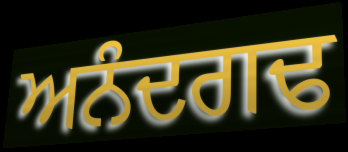
ਅਨੰਦਗਢ